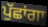
ਪੁੱਛਾਂਗਾ